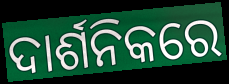
ଦାର୍ଶନିକରେ